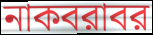
নাকবরাবর